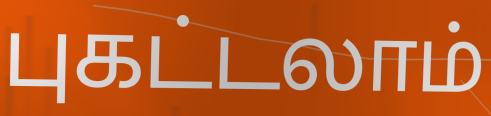
புகட்டலாம்